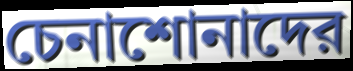
চেনাশোনাদের